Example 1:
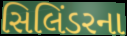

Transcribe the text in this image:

સિલિંડરના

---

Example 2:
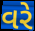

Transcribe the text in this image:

વરે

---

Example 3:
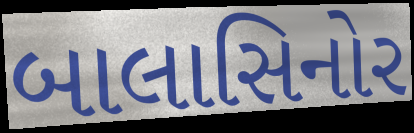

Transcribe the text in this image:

બાલાસિનોર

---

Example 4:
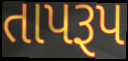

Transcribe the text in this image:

તાપરૂપ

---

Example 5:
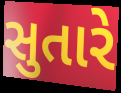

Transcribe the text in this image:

સુતારે